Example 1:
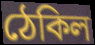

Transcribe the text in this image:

ঠেকিল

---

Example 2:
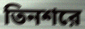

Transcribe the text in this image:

তিনশরে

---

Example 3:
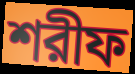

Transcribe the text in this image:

শরীফ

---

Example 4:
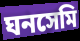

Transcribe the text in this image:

ঘনসেমি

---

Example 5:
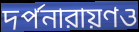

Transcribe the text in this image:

দর্পনারায়ণও